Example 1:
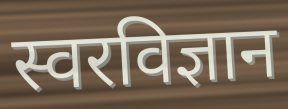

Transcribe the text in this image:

स्वरविज्ञान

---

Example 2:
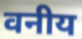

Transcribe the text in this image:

वनीय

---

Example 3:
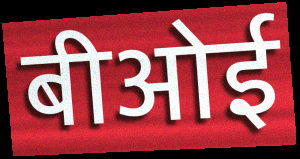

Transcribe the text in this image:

बीओई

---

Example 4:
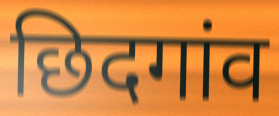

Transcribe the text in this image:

छिदगांव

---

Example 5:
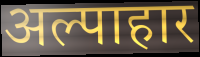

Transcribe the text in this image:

अल्पाहार